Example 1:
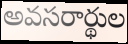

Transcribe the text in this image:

అవసరార్థుల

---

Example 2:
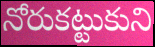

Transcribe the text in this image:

నోరుకట్టుకుని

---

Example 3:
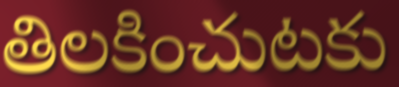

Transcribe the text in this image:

తిలకించుటకు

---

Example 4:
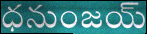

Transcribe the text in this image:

ధనుంజయ్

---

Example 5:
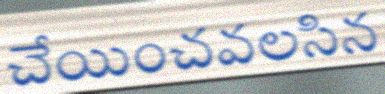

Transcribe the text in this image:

చేయించవలసిన